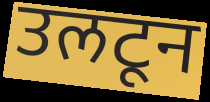
उलटून